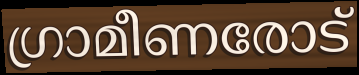
ഗ്രാമീണരോട്